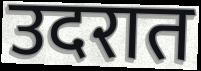
उदरात